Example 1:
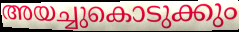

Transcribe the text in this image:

അയച്ചുകൊടുക്കും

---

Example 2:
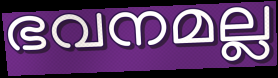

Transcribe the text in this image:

ഭവനമല്ല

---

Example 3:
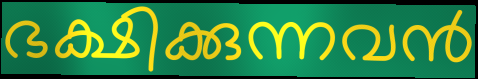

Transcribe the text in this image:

ഭക്ഷിക്കുന്നവൻ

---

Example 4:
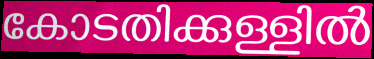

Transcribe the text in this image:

കോടതിക്കുള്ളിൽ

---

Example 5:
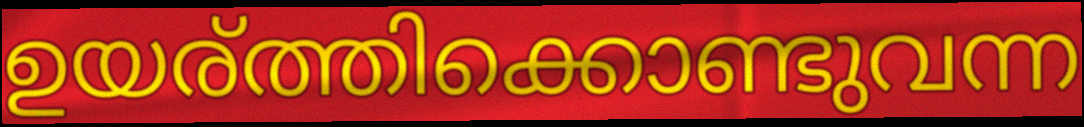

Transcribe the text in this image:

ഉയര്ത്തിക്കൊണ്ടുവന്ന